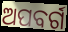
ଅପବର୍ଗ